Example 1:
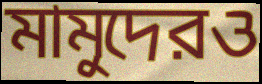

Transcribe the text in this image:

মামুদেরও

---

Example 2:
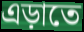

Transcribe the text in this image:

এড়াতে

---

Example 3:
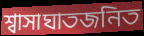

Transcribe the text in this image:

শ্বাসাঘাতজনিত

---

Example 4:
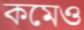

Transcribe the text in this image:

কমেও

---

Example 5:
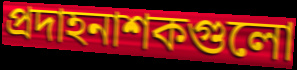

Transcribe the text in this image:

প্রদাহনাশকগুলো